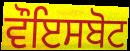
ਵੌਇਸਬੋਟ